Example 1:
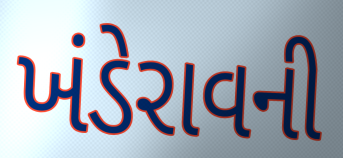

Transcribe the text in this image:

ખંડેરાવની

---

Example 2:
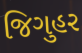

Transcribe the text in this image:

જિગુહર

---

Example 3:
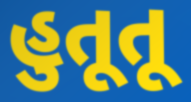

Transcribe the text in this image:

હુતૂતૂ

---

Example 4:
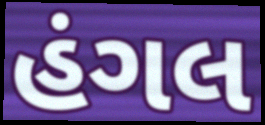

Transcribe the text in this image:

હંગલ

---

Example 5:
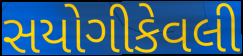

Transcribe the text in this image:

સયોગીકેવલી